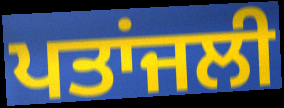
ਪਤਾਂਜਲੀ